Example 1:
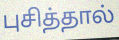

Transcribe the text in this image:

புசித்தால்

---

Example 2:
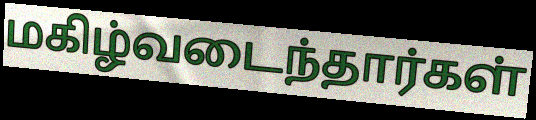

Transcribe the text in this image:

மகிழ்வடைந்தார்கள்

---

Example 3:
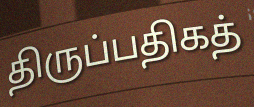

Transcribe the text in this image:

திருப்பதிகத்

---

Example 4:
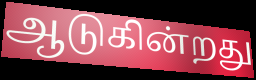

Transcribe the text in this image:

ஆடுகின்றது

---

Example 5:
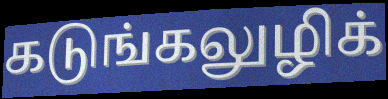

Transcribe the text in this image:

கடுங்கலுழிக்